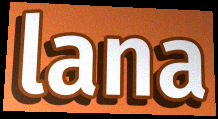
lana